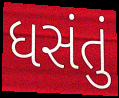
ધસંતું